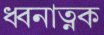
ধ্বনাত্নক